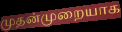
முதன்முறையாக